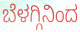
ಬೆಳಗ್ಗಿನಿಂದ